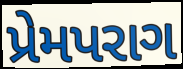
પ્રેમપરાગ